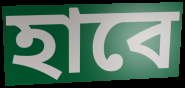
হাবে